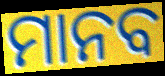
ମାନବ